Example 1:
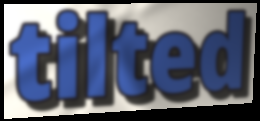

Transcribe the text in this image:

tilted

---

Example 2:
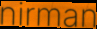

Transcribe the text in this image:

nirman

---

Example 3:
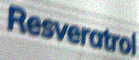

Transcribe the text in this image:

Resveratrol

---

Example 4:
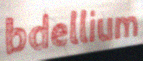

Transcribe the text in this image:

bdellium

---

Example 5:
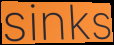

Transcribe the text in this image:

sinks